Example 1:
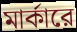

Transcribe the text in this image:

মার্কারে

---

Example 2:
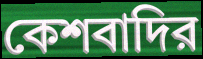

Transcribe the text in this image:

কেশবাদির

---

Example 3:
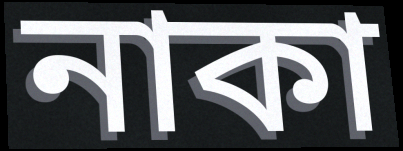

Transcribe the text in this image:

নাকা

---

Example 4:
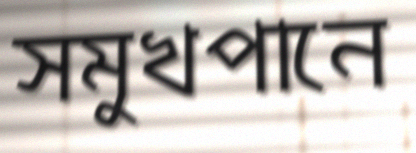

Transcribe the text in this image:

সমুখপানে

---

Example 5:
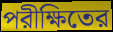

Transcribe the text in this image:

পরীক্ষিতের